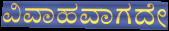
ವಿವಾಹವಾಗದೇ